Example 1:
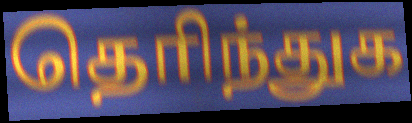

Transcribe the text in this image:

தெரிந்துக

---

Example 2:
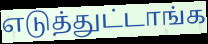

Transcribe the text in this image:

எடுத்துட்டாங்க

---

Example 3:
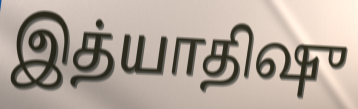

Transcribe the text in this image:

இத்யாதிஷு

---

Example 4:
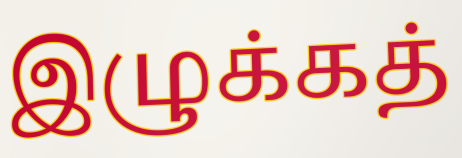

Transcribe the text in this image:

இழுக்கத்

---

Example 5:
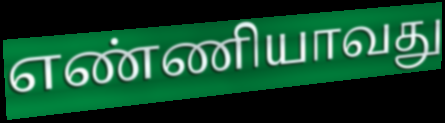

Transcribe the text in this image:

எண்ணியாவது